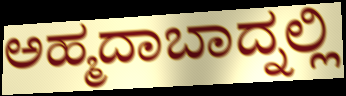
ಅಹ್ಮದಾಬಾದ್ನಲ್ಲಿ